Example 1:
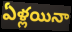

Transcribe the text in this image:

ఏళ్లయినా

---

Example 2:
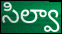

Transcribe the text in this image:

సిల్వా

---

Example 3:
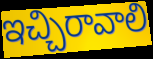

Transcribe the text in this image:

ఇచ్చిరావాలి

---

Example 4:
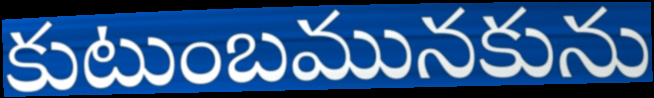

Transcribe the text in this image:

కుటుంబమునకును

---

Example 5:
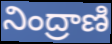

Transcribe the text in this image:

నింద్రాణి